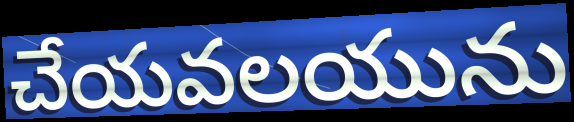
చేయవలయును